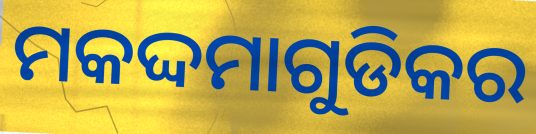
ମକଦ୍ଦମାଗୁଡିକର